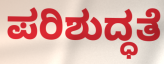
ಪರಿಶುದ್ಧತೆ